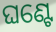
ଘଣ୍ଟେ